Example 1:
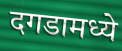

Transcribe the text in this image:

दगडामध्ये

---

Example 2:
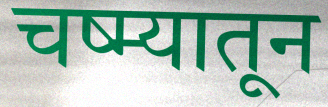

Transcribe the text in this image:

चष्म्यातून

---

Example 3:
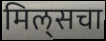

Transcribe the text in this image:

मिल्सचा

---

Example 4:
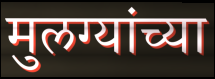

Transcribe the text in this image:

मुलग्यांच्या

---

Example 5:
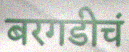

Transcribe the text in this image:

बरगडीचं